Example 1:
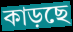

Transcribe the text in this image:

কাড়ছে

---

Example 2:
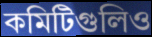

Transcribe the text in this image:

কমিটিগুলিও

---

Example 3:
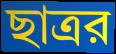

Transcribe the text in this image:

ছাত্রর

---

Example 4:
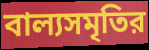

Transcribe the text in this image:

বাল্যসমৃতির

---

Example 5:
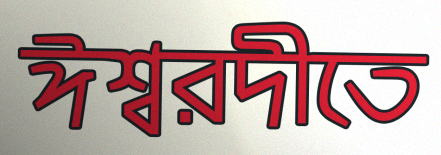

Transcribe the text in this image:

ঈশ্বরদীতে